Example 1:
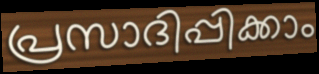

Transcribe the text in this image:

പ്രസാദിപ്പിക്കാം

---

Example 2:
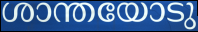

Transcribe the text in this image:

ശാന്തയോടു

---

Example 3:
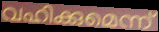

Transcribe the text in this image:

വഹിക്കുമെന്ന്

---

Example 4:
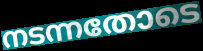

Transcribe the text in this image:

നടന്നതോടെ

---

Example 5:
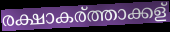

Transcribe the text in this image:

രക്ഷാകര്ത്താക്കള്